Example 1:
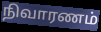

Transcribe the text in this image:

நிவாரணம்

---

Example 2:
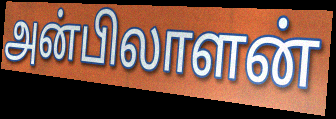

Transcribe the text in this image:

அன்பிலாளன்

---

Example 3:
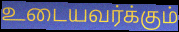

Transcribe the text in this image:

உடையவர்க்கும்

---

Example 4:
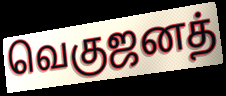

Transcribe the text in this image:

வெகுஜனத்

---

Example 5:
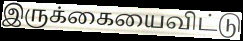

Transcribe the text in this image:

இருக்கையைவிட்டு